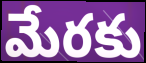
మేరకు